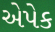
એપેક